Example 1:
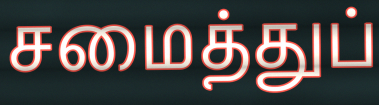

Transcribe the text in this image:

சமைத்துப்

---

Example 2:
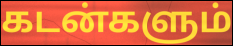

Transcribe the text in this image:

கடன்களும்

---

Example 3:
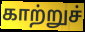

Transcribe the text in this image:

காற்றுச்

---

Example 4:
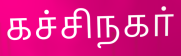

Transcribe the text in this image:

கச்சிநகர்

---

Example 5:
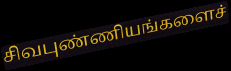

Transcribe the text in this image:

சிவபுண்ணியங்களைச்